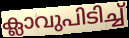
ക്ലാവുപിടിച്ച്